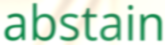
abstain